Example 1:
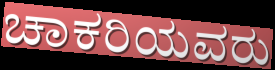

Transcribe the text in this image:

ಚಾಕರಿಯವರು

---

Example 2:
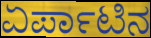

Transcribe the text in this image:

ಏರ್ಪಾಟಿನ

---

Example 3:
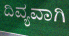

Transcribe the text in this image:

ದಿವ್ಯವಾಗಿ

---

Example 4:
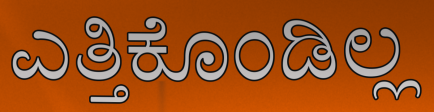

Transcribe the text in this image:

ಎತ್ತಿಕೊಂಡಿಲ್ಲ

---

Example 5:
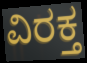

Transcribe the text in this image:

ವಿರಕ್ತ